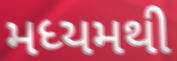
મધ્યમથી